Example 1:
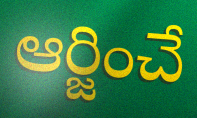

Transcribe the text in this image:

ఆర్జించే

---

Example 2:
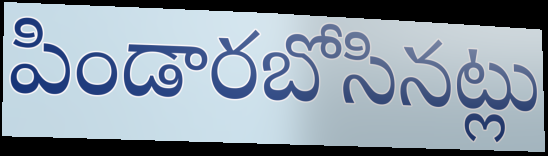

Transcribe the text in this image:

పిండారబోసినట్లు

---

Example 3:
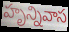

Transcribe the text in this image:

హృన్నివాస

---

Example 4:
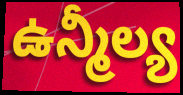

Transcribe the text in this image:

ఉన్మీల్య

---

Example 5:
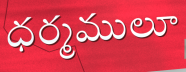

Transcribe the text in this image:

ధర్మములూ